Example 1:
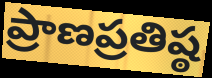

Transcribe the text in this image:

ప్రాణప్రతిష్ఠ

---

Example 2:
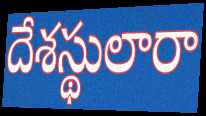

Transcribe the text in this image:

దేశస్థులారా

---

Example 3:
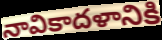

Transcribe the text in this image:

నావికాదళానికి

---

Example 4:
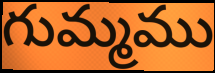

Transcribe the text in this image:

గుమ్మము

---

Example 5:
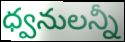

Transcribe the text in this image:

ధ్వనులన్నీ